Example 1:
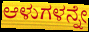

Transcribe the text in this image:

ಆಳುಗಳನ್ನೇ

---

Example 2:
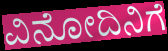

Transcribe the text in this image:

ವಿನೋದಿನಿಗೆ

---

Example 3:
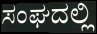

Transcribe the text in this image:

ಸಂಘದಲ್ಲಿ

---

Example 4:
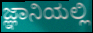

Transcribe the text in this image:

ಜ್ಞಾನಿಯಲ್ಲಿ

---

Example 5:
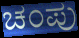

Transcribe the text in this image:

ಚಂಪು